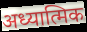
अध्यात्मिक